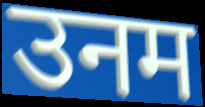
उनम